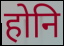
होनि